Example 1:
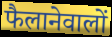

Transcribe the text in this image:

फैलानेवालों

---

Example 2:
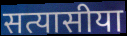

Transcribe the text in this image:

सत्यासीया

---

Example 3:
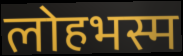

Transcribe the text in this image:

लोहभस्म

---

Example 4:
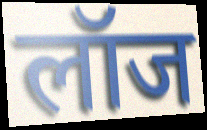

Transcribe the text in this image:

लॉज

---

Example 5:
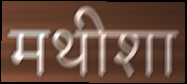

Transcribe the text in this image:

मथीशा